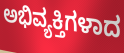
ಅಭಿವ್ಯಕ್ತಿಗಳಾದ